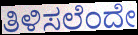
ತಿಳಿಸಲೆಂದೇ